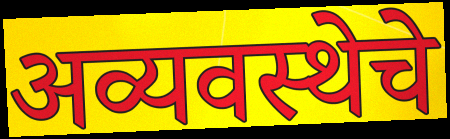
अव्यवस्थेचे